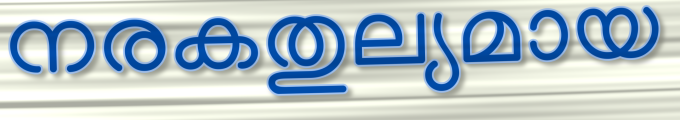
നരകതുല്യമായ